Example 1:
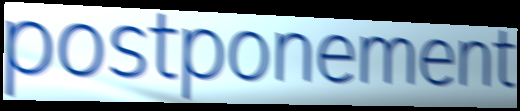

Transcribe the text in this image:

postponement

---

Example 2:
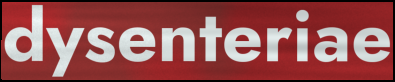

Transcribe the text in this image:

dysenteriae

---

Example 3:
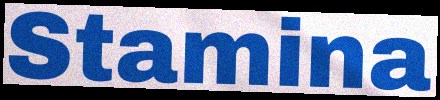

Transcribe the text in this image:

Stamina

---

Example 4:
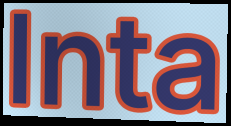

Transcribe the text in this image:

Inta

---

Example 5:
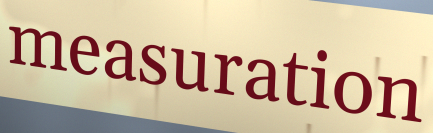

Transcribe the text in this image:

measuration